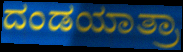
ದಂಡಯಾತ್ರಾ